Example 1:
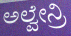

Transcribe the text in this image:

ಅಲ್ವೇನ್ರಿ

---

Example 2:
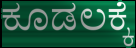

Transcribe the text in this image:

ಕೂಡಲಕ್ಕೆ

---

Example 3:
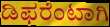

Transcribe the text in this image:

ಡಿಫರೆಂಟಾಗಿ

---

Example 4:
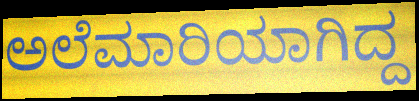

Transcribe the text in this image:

ಅಲೆಮಾರಿಯಾಗಿದ್ದ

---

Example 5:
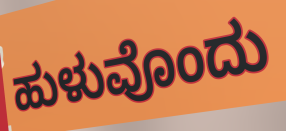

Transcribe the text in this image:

ಹುಳುವೊಂದು